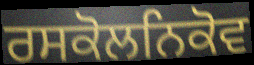
ਰਸਕੋਲਨਿਕੋਵ